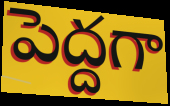
పెద్దగా